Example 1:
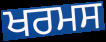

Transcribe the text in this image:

ਖਰਮਸ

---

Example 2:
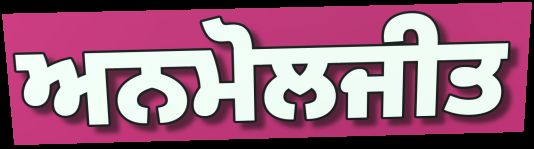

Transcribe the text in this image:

ਅਨਮੋਲਜੀਤ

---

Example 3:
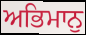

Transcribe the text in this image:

ਅਭਿਮਾਨੁ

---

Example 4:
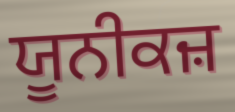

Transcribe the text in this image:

ਯੂਨੀਕਜ਼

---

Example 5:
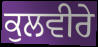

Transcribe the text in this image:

ਕੁਲਵੀਰੇ